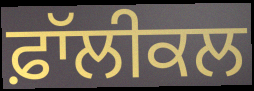
ਫ਼ਾੱਲੀਕਲ